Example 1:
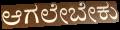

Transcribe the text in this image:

ಆಗಲೇಬೇಕು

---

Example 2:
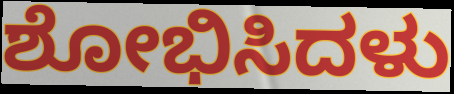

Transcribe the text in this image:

ಶೋಭಿಸಿದಳು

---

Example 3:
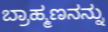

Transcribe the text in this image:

ಬ್ರಾಹ್ಮಣನನ್ನು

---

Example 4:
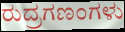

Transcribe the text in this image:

ರುದ್ರಗಣಂಗಳು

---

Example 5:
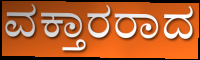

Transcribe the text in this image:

ವಕ್ತಾರರಾದ